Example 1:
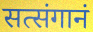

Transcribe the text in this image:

सत्संगानं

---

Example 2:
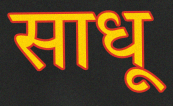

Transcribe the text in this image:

साधू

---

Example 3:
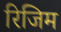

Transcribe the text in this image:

रिजिम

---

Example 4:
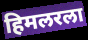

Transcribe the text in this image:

हिमलरला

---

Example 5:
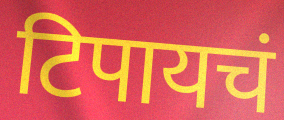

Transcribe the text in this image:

टिपायचं